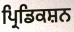
ਪ੍ਰਿਡਿਕਸ਼ਨ